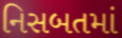
નિસબતમાં